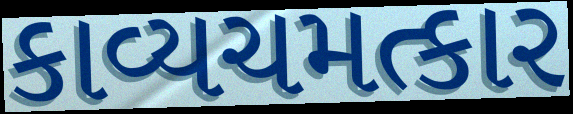
કાવ્યચમત્કાર